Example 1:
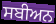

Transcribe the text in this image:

ਸਬੀਅਨ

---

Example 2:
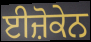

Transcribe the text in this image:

ਈਜ਼ੋਕੇਨ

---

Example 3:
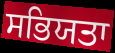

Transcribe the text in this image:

ਸਭਿਯਤਾ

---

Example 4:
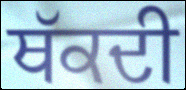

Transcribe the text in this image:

ਥੱਕਦੀ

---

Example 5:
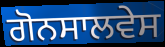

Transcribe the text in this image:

ਗੋਨਸਾਲਵੇਸ